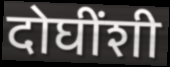
दोघींशी